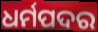
ଧର୍ମପଦର